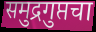
समुद्रगुप्तचा